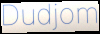
Dudjom